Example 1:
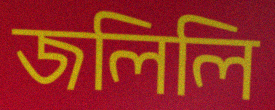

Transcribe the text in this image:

জলিলি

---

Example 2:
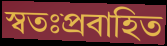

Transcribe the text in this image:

স্বতঃপ্রবাহিত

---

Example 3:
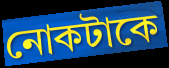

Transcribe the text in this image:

নোকটাকে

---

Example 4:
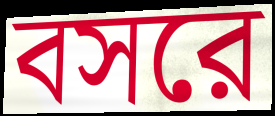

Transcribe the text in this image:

বসরে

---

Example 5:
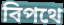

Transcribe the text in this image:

বিপথে